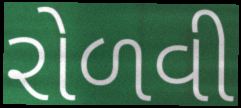
રોળવી